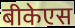
बीकेएस